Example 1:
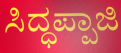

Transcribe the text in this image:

ಸಿದ್ಧಪ್ಪಾಜಿ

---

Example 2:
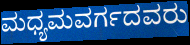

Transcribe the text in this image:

ಮಧ್ಯಮವರ್ಗದವರು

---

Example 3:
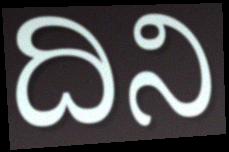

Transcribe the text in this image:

ದಿನಿ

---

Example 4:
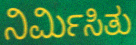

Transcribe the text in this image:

ನಿರ್ಮಿಸಿತು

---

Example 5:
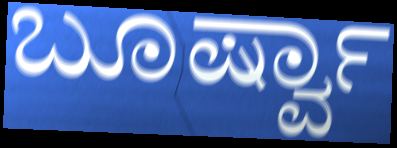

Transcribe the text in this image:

ಬೂರ್ಷ್ವಾ